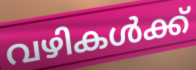
വഴികൾക്ക്